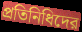
প্রতিনিধিদের